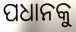
ପଧାନକୁ